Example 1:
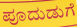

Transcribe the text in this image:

ಪೂದುಡುಗೆ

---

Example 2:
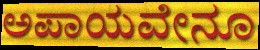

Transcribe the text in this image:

ಅಪಾಯವೇನೂ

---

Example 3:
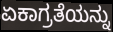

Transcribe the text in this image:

ಏಕಾಗ್ರತೆಯನ್ನು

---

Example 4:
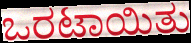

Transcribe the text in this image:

ಒರಟಾಯಿತು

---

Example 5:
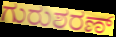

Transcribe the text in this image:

ಗುರುಶರಣ್